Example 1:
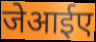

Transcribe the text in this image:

जेआईए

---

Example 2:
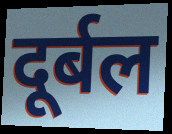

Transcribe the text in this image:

दूर्बल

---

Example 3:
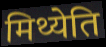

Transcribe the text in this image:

मिथ्येति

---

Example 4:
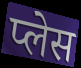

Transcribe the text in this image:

प्लेस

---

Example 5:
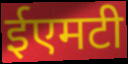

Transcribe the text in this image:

ईएमटी